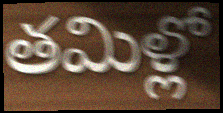
తమిళ్లో